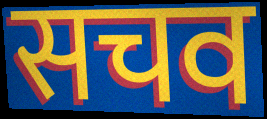
सचव